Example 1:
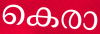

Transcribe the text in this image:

കെരാ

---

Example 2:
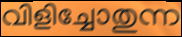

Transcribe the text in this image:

വിളിച്ചോതുന്ന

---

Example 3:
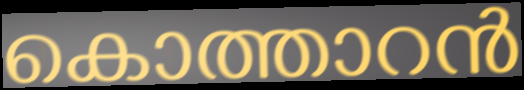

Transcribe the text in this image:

കൊത്താറൻ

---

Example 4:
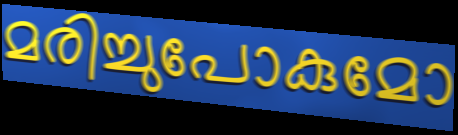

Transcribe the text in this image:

മരിച്ചുപോകുമോ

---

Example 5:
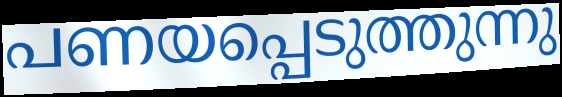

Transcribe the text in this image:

പണയപ്പെടുത്തുന്നു